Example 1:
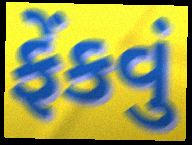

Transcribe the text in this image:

ફેંકવું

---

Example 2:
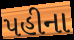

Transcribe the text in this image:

પહીના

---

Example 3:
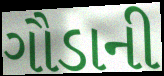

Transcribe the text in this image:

ગૌડાની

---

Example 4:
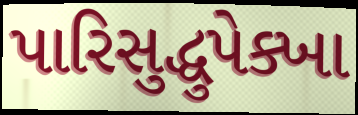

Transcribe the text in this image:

પારિસુદ્ધુપેક્ખા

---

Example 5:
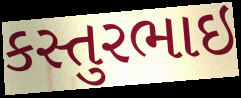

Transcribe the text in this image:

કસ્તુરભાઇ